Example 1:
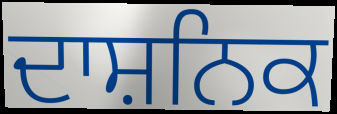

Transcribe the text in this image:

ਦਾਸ਼ਨਿਕ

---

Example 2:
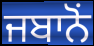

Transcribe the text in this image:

ਜਬਾਨੋਂ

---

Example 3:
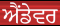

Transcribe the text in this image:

ਐਂਡੇਵਰ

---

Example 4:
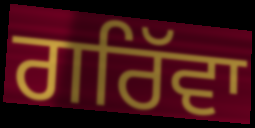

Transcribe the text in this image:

ਗਰਿੱਵਾ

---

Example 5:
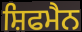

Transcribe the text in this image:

ਸ਼ਿਫਮੈਨ